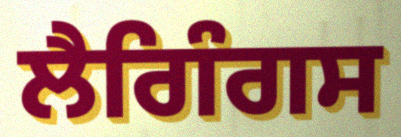
ਲੈਗਿੰਗਸ